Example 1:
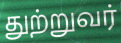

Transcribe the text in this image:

துற்றுவர்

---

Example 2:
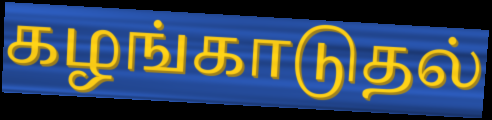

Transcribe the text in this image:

கழங்காடுதல்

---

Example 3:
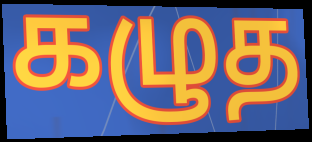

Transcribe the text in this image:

கழுத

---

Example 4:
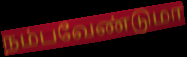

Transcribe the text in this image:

நம்பவேண்டுமா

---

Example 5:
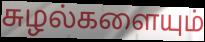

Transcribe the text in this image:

சுழல்களையும்